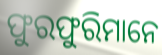
ଫୁରଫୁରିମାନେ